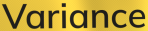
Variance